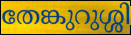
തേങ്കുറുശ്ശി